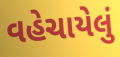
વહેચાયેલું